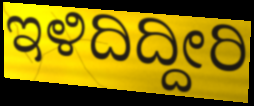
ಇಳಿದಿದ್ದೀರಿ